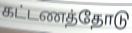
கட்டணத்தோடு